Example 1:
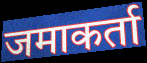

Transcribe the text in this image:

जमाकर्ता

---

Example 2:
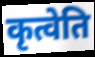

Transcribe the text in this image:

कृत्वेति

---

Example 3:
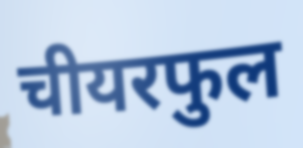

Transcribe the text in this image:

चीयरफुल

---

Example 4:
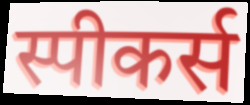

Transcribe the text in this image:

स्पीकर्स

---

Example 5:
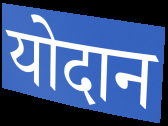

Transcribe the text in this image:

योदान